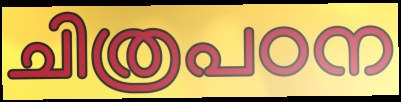
ചിത്രപഠന